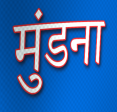
मुंडना